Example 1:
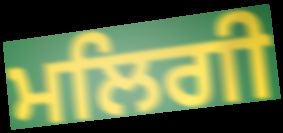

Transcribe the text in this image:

ਮਲਿਗੀ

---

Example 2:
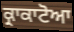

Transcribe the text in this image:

ਕ੍ਰਾਕਾਟੋਆ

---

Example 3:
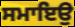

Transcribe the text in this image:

ਸਮਾਇਉ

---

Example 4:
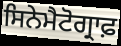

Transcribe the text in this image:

ਸਿਨੇਮੈਟੋਗ੍ਰਾਫ਼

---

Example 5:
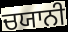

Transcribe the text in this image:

ਚਯਾਨੀ